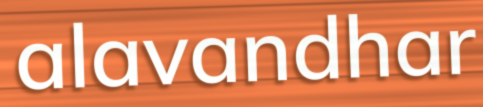
alavandhar